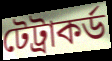
টেট্ৰাকৰ্ড